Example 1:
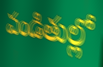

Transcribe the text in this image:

పండితుల్లో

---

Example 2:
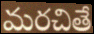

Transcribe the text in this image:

మరచితే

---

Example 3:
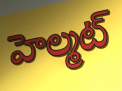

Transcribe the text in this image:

హెల్మట్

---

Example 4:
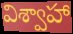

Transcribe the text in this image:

విశ్వాహా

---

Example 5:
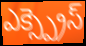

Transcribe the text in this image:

ఎక్స్ప్రెస్